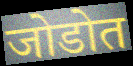
जोडोत